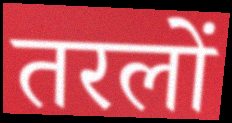
तरलों